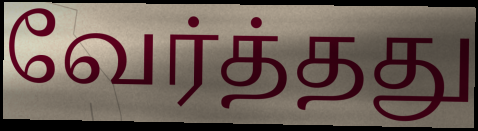
வேர்த்தது